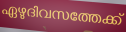
ഏഴുദിവസത്തേക്ക്